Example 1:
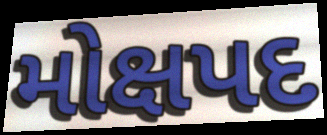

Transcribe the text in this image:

મોક્ષપદ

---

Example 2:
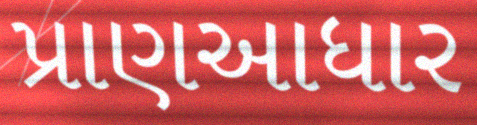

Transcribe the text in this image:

પ્રાણઆધાર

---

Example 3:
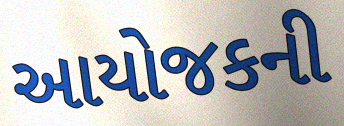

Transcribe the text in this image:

આયોજકની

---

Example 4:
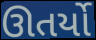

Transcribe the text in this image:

ઊતર્યો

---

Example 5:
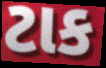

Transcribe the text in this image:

ટાક